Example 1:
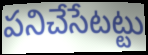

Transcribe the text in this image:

పనిచేసేటట్టు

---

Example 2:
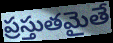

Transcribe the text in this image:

ప్రస్తుతమైతే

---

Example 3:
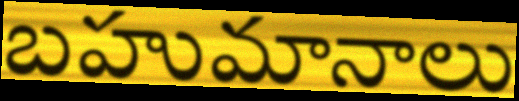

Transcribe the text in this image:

బహుమానాలు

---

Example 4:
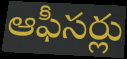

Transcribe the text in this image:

ఆఫీసర్లు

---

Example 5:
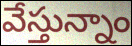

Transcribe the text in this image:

వేస్తున్నాం